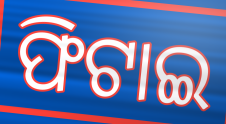
ଫିଟାଇ